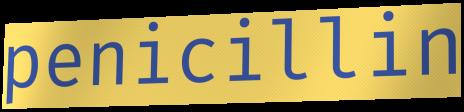
penicillin